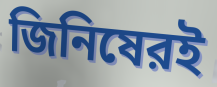
জিনিষেরই